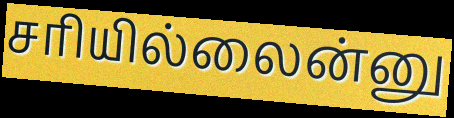
சரியில்லைன்னு